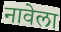
नावेला